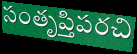
సంతృప్తిపరచి